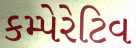
કમ્પેરેટિવ